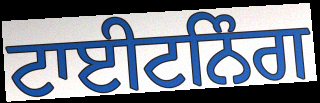
ਟਾਈਟਨਿੰਗ